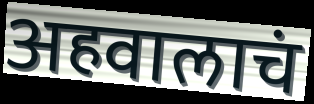
अहवालाचं